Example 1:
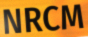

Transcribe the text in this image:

NRCM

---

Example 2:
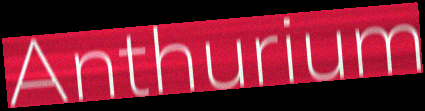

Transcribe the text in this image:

Anthurium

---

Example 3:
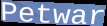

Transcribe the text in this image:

Petwar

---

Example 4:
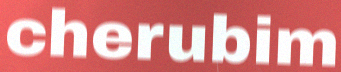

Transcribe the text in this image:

cherubim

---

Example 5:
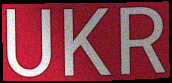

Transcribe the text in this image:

UKR